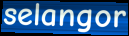
selangor